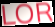
LOR